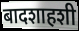
बादशाहशी